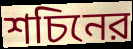
শচিনের